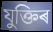
যুক্তিৰ